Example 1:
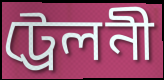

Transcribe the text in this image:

ট্রেলনী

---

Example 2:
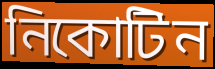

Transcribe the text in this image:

নিকোটিন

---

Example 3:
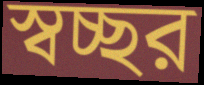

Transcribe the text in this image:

স্বচ্ছর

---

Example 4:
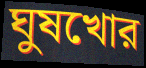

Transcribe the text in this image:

ঘুষখোর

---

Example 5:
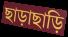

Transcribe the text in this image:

ছাড়াছাড়ি